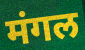
मंगल